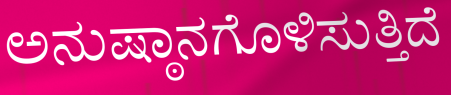
ಅನುಷ್ಠಾನಗೊಳಿಸುತ್ತಿದೆ